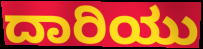
ದಾರಿಯು